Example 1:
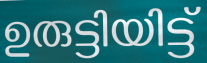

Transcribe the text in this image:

ഉരുട്ടിയിട്ട്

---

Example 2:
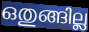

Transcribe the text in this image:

ഒതുങ്ങില്ല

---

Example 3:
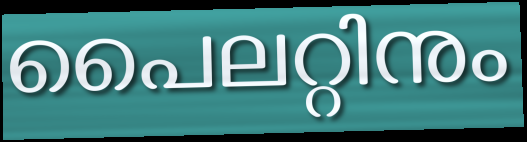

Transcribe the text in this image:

പൈലറ്റിനും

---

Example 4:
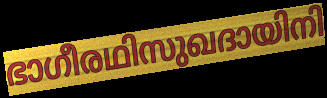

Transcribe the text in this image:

ഭാഗീരഥിസുഖദായിനി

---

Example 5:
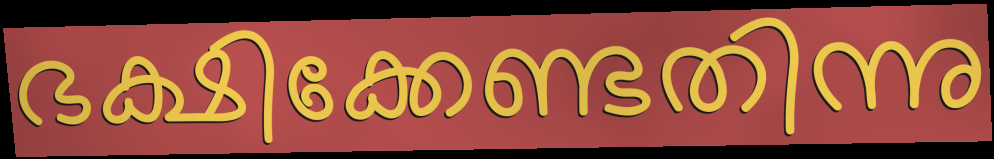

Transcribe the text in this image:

ഭക്ഷിക്കേണ്ടതിന്നു